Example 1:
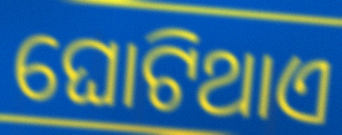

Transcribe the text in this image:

ଘୋଟିଥାଏ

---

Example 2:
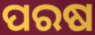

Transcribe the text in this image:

ପରଷ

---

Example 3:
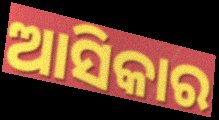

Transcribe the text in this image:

ଆସିକାର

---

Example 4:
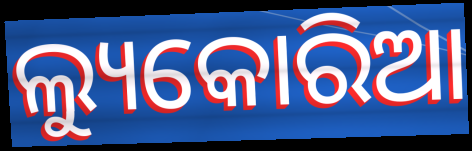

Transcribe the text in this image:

ଲ୍ୟୁକୋରିଆ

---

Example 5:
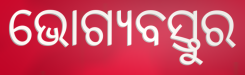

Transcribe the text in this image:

ଭୋଗ୍ୟବସ୍ତୁର